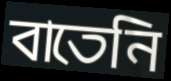
বাতেনি